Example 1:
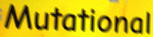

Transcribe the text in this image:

Mutational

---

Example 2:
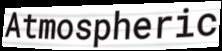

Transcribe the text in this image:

Atmospheric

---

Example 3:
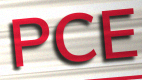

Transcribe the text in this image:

PCE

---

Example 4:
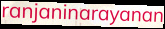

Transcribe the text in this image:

ranjaninarayanan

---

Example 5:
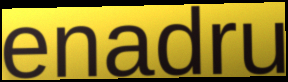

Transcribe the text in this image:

enadru